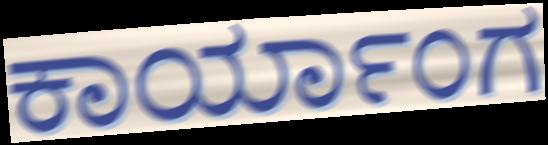
ಕಾರ್ಯಾಂಗ